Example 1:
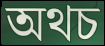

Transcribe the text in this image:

অথচ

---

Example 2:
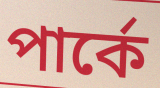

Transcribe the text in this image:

পার্কে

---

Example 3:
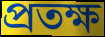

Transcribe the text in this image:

প্রতক্ষ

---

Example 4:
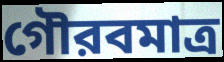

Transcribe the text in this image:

গৌরবমাত্র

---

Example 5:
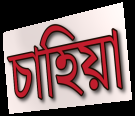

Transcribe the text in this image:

চাহিয়া